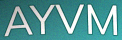
AYVM